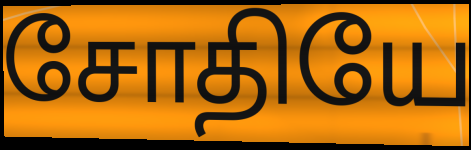
சோதியே